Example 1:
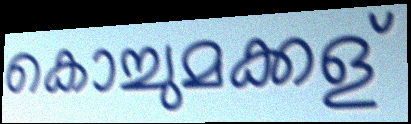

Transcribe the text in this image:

കൊച്ചുമക്കള്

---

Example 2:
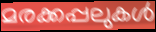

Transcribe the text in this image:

മരക്കപ്പലുകൾ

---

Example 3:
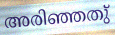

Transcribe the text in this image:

അരിഞ്ഞതു്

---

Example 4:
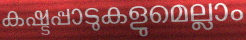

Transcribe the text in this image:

കഷ്ടപ്പാടുകളുമെല്ലാം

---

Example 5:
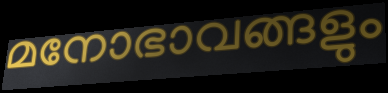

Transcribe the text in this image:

മനോഭാവങ്ങളും